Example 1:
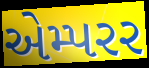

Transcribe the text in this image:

એમ્પરર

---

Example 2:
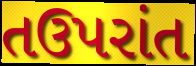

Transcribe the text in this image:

તઉપરાંત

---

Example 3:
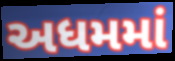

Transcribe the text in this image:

અધમમાં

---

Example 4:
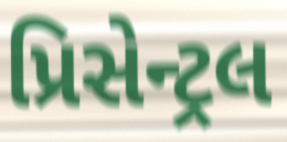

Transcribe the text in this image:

પ્રિસેન્ટ્રલ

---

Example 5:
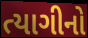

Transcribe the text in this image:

ત્યાગીનો